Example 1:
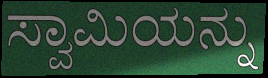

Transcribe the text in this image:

ಸ್ವಾಮಿಯನ್ನು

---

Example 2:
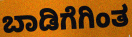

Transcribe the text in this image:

ಬಾಡಿಗೆಗಿಂತ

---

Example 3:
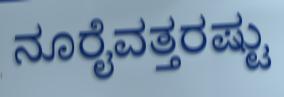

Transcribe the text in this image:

ನೂರೈವತ್ತರಷ್ಟು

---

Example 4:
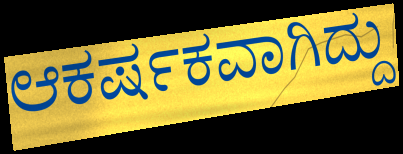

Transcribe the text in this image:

ಆಕರ್ಷಕವಾಗಿದ್ದು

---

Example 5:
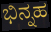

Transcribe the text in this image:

ಭಿನ್ನಹ